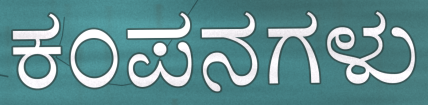
ಕಂಪನಗಳು